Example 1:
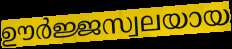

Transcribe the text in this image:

ഊർജ്ജസ്വലയായ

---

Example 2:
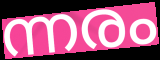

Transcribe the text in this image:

ന്നരം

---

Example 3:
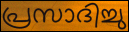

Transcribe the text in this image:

പ്രസാദിച്ചു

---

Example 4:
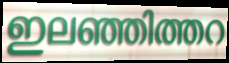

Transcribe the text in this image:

ഇലഞ്ഞിത്തറ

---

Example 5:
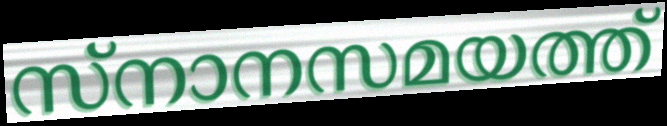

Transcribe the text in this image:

സ്നാനസമയത്ത്